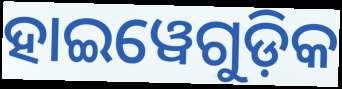
ହାଇୱେଗୁଡ଼ିକ